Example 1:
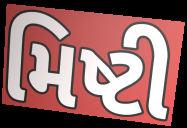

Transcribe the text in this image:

મિષ્ટી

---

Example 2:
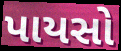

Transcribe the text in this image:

પાયસો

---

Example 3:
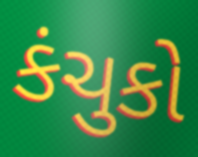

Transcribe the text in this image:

કંચુકો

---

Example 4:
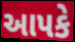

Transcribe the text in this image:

આપકે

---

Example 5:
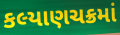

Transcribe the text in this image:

કલ્યાણચક્રમાં